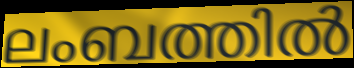
ലംബത്തിൽ